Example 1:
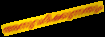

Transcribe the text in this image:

അനുവദിക്കുന്നതും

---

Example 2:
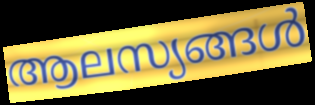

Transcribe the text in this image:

ആലസ്യങ്ങൾ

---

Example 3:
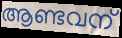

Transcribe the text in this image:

ആണ്ടവന്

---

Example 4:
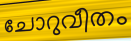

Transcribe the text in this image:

ചോറുവീതം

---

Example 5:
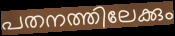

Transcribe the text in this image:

പതനത്തിലേക്കും